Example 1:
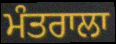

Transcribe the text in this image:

ਮੰਤਰਾਲਾ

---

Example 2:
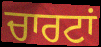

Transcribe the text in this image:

ਚਾਰਟਾਂ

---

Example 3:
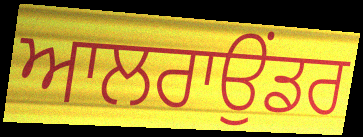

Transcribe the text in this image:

ਆਲਰਾਉਂਡਰ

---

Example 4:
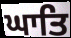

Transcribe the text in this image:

ਘਾਤਿ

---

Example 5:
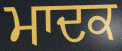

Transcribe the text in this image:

ਮਾਦਕ